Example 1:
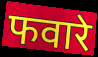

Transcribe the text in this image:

फवारे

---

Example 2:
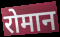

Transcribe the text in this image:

रोमान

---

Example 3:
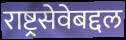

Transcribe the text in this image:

राष्ट्रसेवेबद्दल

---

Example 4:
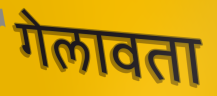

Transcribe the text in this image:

गेलावता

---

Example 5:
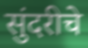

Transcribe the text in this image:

सुंदरीचे